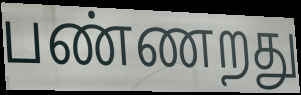
பண்ணறது